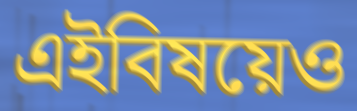
এইবিষয়েও